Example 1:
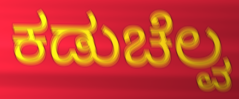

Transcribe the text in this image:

ಕಡುಚೆಲ್ವ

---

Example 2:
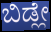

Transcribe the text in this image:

ಬಿಡ್ಲೇ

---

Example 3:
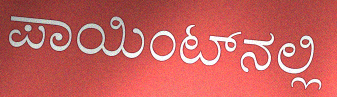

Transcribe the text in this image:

ಪಾಯಿಂಟ್‌ನಲ್ಲಿ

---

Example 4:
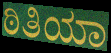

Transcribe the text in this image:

ಠಿತಿಯಾ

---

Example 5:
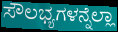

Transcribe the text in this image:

ಸೌಲಭ್ಯಗಳನ್ನೆಲ್ಲಾ